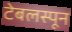
टेबलस्पून